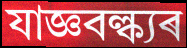
যাজ্ঞবল্ক্যৰ